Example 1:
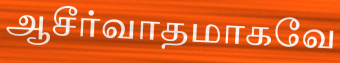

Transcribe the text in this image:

ஆசீர்வாதமாகவே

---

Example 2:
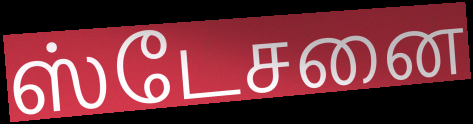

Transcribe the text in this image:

ஸ்டேசனை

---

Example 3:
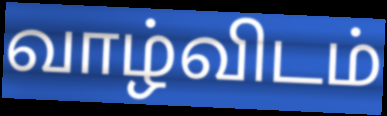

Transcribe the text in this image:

வாழ்விடம்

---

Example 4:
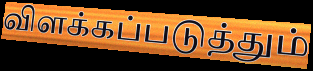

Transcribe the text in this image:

விளக்கப்படுத்தும்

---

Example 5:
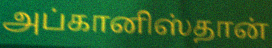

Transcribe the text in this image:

அப்கானிஸ்தான்